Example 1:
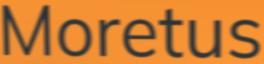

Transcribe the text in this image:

Moretus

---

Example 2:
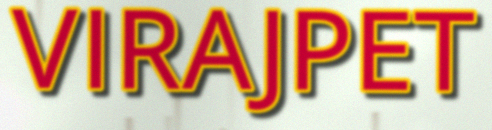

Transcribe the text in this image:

VIRAJPET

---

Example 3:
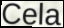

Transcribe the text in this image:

Cela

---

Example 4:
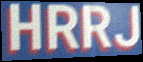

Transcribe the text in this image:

HRRJ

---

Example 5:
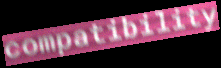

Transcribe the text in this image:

compatibility